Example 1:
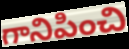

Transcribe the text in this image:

గానిపించి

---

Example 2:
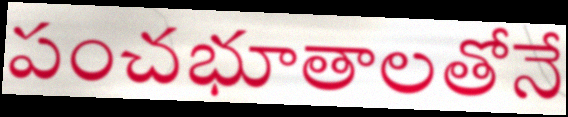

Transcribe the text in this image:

పంచభూతాలతోనే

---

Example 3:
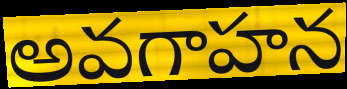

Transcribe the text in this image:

అవగాహన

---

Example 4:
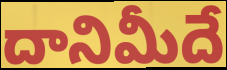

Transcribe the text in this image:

దానిమీదే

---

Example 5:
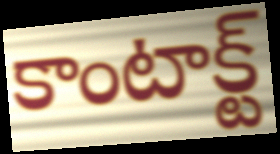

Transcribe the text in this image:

కాంటాక్ట్